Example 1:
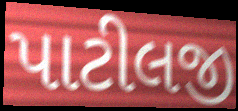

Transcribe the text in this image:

પાટીલજી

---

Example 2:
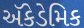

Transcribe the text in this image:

ઍકેડેમિક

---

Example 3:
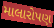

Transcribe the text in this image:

માલારોપણ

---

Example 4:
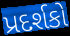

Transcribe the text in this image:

પ્રદર્શકો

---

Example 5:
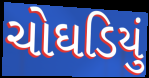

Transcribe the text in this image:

ચોઘડિયું